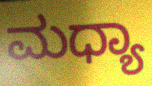
ಮಧ್ಯಾ